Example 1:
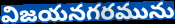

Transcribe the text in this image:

విజయనగరమును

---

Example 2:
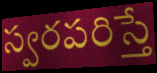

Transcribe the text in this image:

స్వరపరిస్తే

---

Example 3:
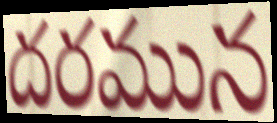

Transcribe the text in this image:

దరమున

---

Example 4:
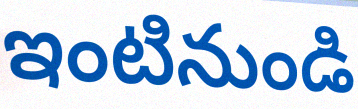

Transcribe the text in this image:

ఇంటినుండి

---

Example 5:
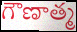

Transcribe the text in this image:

గౌణాత్మ